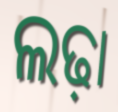
ଲଢ଼ା